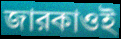
জারকাওই